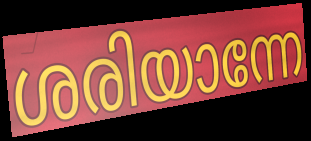
ശരിയാന്നേ